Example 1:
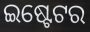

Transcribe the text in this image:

ଇଷ୍ଟେଟର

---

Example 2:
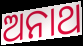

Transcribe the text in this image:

ଅନାଥ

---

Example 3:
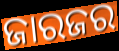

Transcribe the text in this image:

ଜାରଜର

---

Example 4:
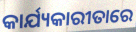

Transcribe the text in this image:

କାର୍ଯ୍ୟକାରୀତାରେ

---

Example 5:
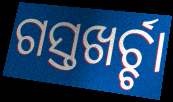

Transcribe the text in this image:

ଗସ୍ତଖର୍ଚ୍ଚା